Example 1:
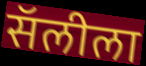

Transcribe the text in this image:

सॅलीला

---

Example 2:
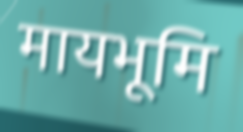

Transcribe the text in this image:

मायभूमि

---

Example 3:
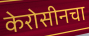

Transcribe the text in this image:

केरोसीनचा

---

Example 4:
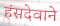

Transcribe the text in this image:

हंसदेवाने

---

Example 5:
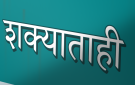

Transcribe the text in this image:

शक्याताही